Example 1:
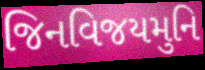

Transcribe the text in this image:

જિનવિજયમુનિ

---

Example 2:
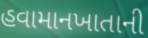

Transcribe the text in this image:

હવામાનખાતાની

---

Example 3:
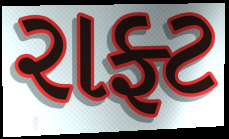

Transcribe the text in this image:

રાફ્ટ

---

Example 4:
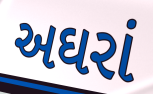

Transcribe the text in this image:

અઘરાં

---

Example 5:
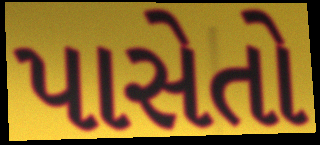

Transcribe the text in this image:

પાસેતો